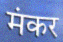
मंकर